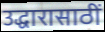
उद्धारासाठीं